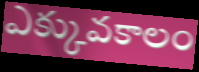
ఎక్కువకాలం